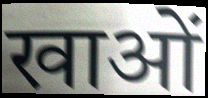
खाओं